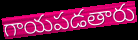
గాయపడతారు